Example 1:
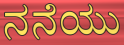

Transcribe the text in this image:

ನನೆಯು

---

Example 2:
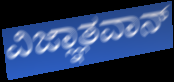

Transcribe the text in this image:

ವಿಜ್ಞಾತವಾನ್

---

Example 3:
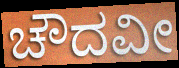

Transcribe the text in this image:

ಚೌದವೀ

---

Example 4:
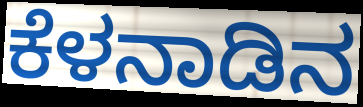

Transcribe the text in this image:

ಕೆಳನಾಡಿನ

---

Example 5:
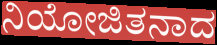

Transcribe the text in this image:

ನಿಯೋಜಿತನಾದ